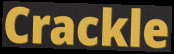
Crackle